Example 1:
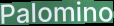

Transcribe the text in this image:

Palomino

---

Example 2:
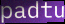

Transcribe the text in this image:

padtu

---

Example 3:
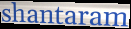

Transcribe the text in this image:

shantaram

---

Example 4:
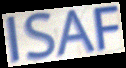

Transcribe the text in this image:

ISAF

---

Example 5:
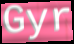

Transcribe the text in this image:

Gyr